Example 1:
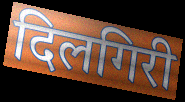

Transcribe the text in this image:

दिलगिरी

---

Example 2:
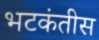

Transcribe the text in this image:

भटकंतीस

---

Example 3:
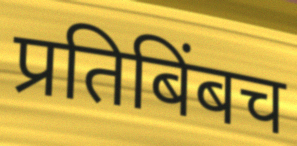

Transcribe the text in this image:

प्रतिबिंबच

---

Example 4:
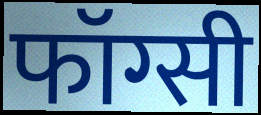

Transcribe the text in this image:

फॉग्सी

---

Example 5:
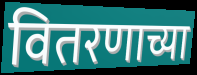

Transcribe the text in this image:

वितरणाच्या